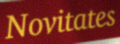
Novitates